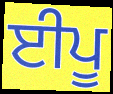
ਈਪੂ